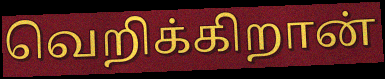
வெறிக்கிறான்